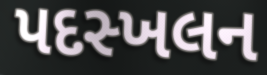
પદસ્ખલન